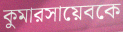
কুমারসায়েবকে